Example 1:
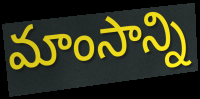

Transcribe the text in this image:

మాంసాన్ని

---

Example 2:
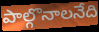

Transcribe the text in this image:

పాల్గొనాలనేది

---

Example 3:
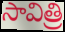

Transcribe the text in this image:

సావిత్రి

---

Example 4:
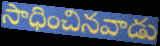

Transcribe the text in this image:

సాధించినవాడు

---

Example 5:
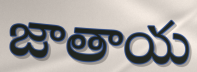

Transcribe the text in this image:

జాతాయ